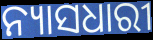
ନ୍ୟାସଧାରୀ